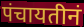
पंचायतीनं